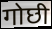
गोछी